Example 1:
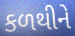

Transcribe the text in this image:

કળથીને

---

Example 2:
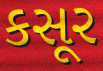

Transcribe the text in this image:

કસૂર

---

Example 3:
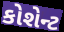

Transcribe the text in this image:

કોશેન્ટ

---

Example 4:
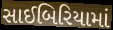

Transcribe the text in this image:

સાઈબિરિયામાં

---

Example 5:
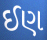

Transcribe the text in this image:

ઈણ